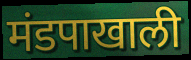
मंडपाखाली